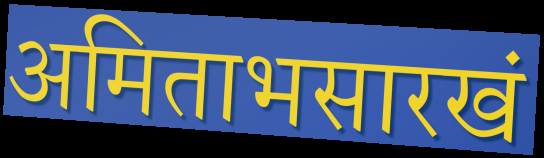
अमिताभसारखं